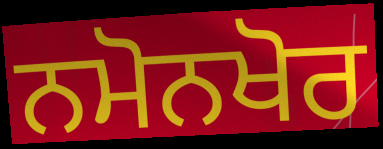
ਨਮੋਨਖੋਰ